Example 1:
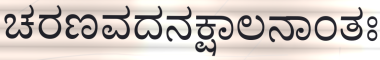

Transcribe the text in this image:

ಚರಣವದನಕ್ಷಾಲನಾಂತಃ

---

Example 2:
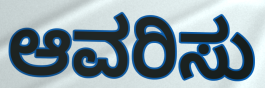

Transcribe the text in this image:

ಆವರಿಸು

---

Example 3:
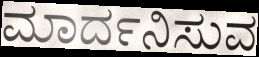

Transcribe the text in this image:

ಮಾರ್ದನಿಸುವ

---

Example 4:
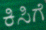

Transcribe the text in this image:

ಕಿಸಿಗೆ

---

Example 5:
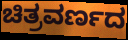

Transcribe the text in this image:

ಚಿತ್ರವರ್ಣದ